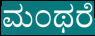
ಮಂಥರೆ